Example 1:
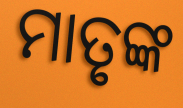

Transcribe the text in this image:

ମାତୃଙ୍କ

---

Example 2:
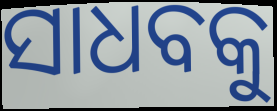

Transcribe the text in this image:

ସାଧବକୁ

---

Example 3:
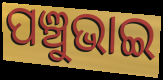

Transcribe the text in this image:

ପଞ୍ଚୁଭାଇ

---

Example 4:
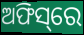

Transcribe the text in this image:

ଅଫିସ୍‌ରେ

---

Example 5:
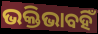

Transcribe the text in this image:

ଭକ୍ତିଭାବହିଁ